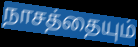
நாசத்தையும்